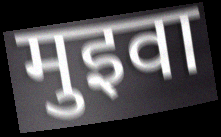
मुइवा